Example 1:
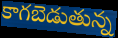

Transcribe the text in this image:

కాగబెడుతున్న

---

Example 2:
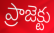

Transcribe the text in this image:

ప్రాజెక్టు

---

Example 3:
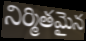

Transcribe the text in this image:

నిర్మితమైన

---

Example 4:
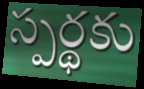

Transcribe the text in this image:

స్పర్థకు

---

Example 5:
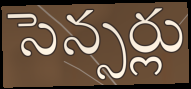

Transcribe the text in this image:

సెన్సర్లు